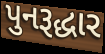
પુનરૂદ્ધાર